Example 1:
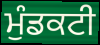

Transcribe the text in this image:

ਮੁੰਡਕਟੀ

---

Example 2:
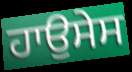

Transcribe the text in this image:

ਹਾਉਸੇਸ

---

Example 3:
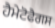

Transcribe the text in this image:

ਹੈਮੇਟੋਫੈਗਸ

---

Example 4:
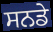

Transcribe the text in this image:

ਸਨਡੇ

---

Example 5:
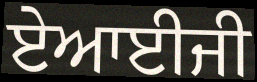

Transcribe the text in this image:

ਏਆਈਜੀ